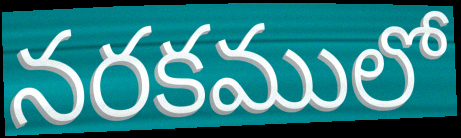
నరకములో